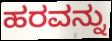
ಹರವನ್ನು